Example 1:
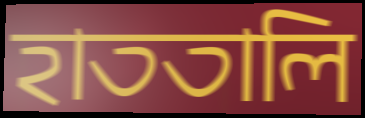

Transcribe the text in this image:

হাততালি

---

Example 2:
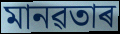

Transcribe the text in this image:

মানৱতাৰ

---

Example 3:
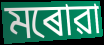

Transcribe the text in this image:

মৰোৱা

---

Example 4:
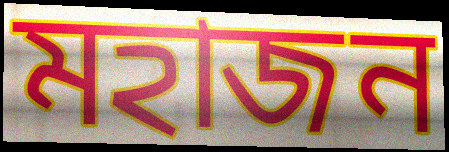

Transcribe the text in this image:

মহাজন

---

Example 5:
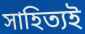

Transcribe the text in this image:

সাহিত্যই